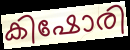
കിഷോരി